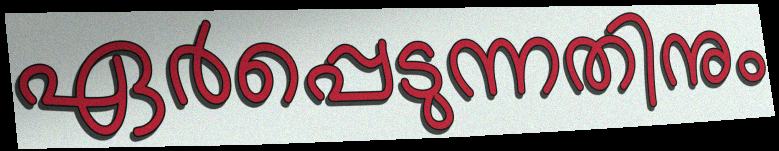
ഏർപ്പെടുന്നതിനും